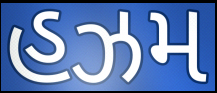
હઝમ